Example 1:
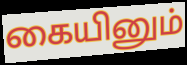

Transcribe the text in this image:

கையினும்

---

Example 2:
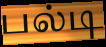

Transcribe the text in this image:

பல்டி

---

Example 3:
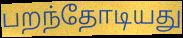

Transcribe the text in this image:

பறந்தோடியது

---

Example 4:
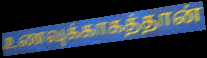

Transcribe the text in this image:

உணவுக்காகத்தான்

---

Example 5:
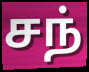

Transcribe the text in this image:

சந்